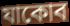
যাকোব